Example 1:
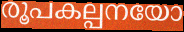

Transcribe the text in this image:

രൂപകല്പനയോ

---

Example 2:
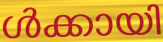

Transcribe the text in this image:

ൾക്കായി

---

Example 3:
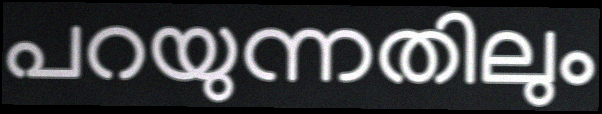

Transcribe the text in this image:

പറയുന്നതിലും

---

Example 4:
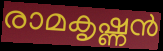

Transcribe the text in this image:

രാമകൃഷ്ണൻ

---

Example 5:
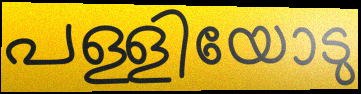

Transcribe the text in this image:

പള്ളിയോടു